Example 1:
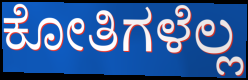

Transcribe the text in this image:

ಕೋತಿಗಳೆಲ್ಲ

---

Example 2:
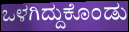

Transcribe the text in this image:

ಒಳಗಿದ್ದುಕೊಂಡು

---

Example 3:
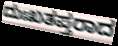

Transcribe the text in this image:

ದುಃಖತಪ್ತರಾದ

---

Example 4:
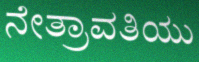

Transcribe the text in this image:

ನೇತ್ರಾವತಿಯು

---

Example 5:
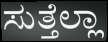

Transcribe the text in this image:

ಸುತ್ತೆಲ್ಲಾ